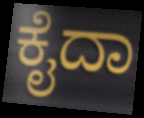
ಕೈದಾ